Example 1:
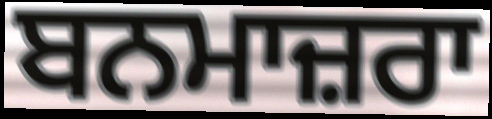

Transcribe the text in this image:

ਬਨਮਾਜ਼ਰਾ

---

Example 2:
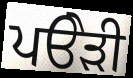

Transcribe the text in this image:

ਪੳੇੜੀ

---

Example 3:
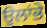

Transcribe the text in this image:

ਉਲਾਂਭੇ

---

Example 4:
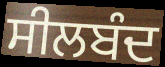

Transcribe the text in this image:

ਸੀਲਬੰਦ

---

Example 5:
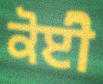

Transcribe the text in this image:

ਕੋਈੋ